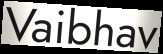
Vaibhav